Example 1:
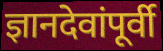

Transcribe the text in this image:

ज्ञानदेवांपूर्वी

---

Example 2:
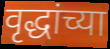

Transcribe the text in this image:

वृद्धांच्या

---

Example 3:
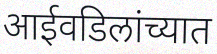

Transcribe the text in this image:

आईवडिलांच्यात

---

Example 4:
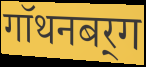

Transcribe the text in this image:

गॉथनबर्ग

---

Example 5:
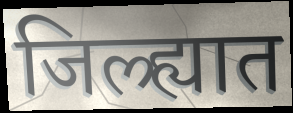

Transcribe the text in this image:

जिल्ह्यात